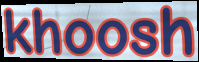
khoosh